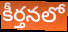
కీర్తనలో